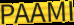
PAAMI